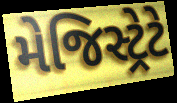
મેજિસ્ટ્રેટે